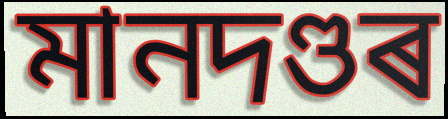
মানদণ্ডৰ